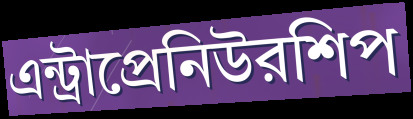
এন্ট্রাপ্রেনিউরশিপ